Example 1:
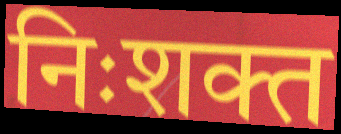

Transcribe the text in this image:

निःशक्त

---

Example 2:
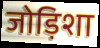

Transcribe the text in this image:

जोड़िशा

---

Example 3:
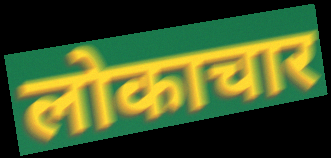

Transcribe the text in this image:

लोकाचार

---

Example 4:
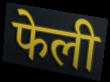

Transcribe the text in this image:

फेली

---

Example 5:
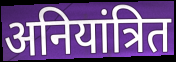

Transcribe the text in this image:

अनियांत्रित